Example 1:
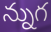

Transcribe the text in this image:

న్నుగ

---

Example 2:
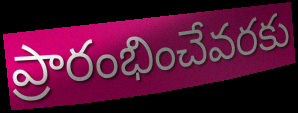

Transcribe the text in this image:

ప్రారంభించేవరకు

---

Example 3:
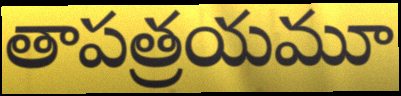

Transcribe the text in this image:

తాపత్రయమూ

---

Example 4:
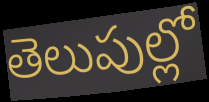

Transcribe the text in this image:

తెలుపుల్లో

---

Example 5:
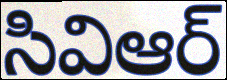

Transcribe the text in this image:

సివిఆర్